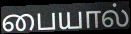
பையால்